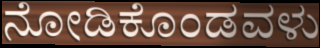
ನೋಡಿಕೊಂಡವಳು